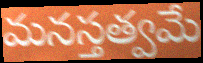
మనస్తత్వమే